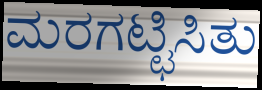
ಮರಗಟ್ಟಿಸಿತು